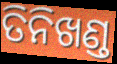
ତିନିଖଣ୍ଡ